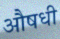
औषधी